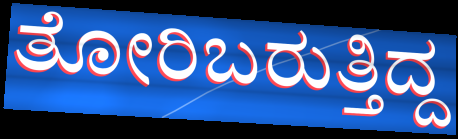
ತೋರಿಬರುತ್ತಿದ್ದ